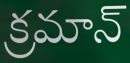
క్రమాన్